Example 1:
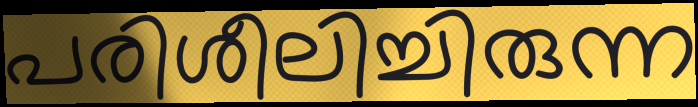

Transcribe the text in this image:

പരിശീലിച്ചിരുന്ന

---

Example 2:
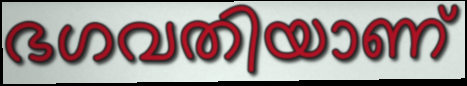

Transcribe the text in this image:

ഭഗവതിയാണ്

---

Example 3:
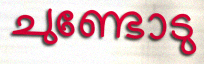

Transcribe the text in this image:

ചുണ്ടോടു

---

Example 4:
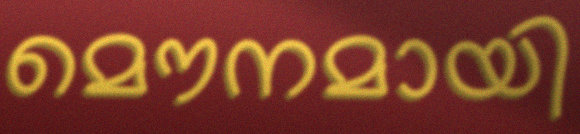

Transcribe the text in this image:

മൌനമായി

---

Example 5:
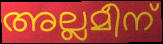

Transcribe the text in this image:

അല്ലമീന്